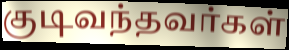
குடிவந்தவர்கள்